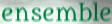
ensemble